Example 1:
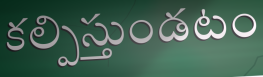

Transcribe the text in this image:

కల్పిస్తుండటం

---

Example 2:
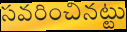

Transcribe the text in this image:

సవరించినట్టు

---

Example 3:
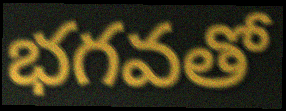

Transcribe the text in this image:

భగవతో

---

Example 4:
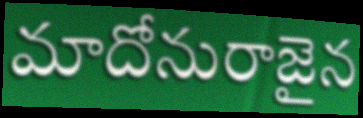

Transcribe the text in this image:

మాదోనురాజైన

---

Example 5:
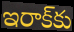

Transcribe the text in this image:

ఇరాక్‌కు